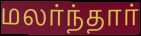
மலர்ந்தார்